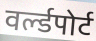
वर्ल्डपोर्ट